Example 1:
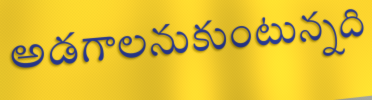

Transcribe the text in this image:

అడగాలనుకుంటున్నది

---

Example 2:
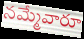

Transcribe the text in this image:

నమ్మేవారూ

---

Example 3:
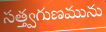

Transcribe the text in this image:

సత్త్వగుణమును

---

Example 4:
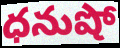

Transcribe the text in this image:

ధనుషో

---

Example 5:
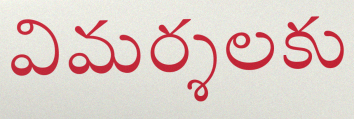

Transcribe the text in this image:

విమర్శలకు